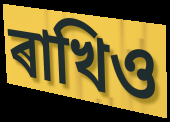
ৰাখিও